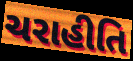
ચરાહીતિ